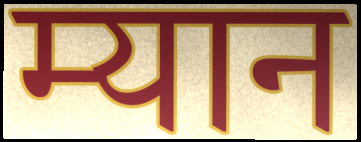
म्यान